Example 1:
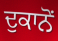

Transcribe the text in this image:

ਦੁਕਾਨੋਂ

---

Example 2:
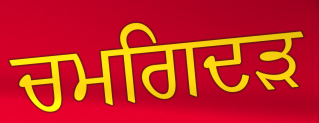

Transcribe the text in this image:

ਚਮਗਿਦੜ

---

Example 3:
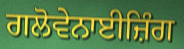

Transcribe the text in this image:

ਗਲੋਵੇਨਾਈਜ਼ਿੰਗ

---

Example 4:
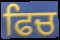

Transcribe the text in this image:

ਫਿਚ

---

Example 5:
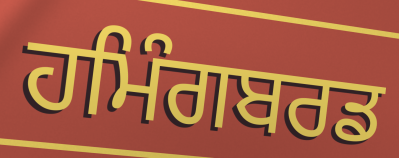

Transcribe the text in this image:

ਹਮਿੰਗਬਰਡ